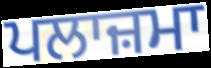
ਪਲਾਜ਼ਮਾ